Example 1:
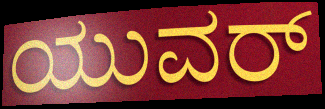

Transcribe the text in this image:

ಯುವರ್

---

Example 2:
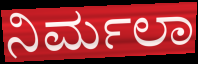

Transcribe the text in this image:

ನಿರ್ಮಲಾ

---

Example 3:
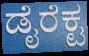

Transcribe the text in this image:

ಡೈರೆಕ್ಟ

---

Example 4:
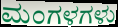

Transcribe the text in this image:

ಮಂಗಳಗಳು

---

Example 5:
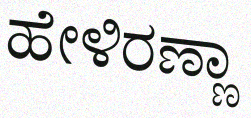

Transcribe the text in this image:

ಹೇಳಿರಣ್ಣಾ